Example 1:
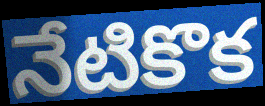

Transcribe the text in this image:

నేటికొక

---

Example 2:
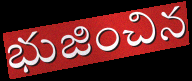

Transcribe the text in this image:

భుజించిన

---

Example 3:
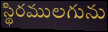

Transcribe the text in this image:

స్థిరములగును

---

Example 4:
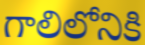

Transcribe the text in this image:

గాలిలోనికి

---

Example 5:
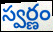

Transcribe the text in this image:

స్వర్ణం